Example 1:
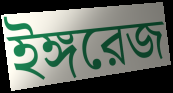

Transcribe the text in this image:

ইঙ্গরেজ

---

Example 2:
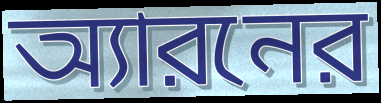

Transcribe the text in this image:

অ্যারনের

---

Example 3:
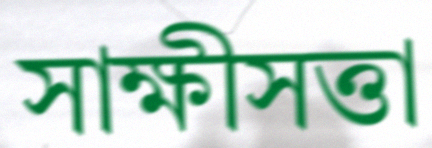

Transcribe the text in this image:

সাক্ষীসত্তা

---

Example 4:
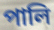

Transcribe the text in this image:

পালি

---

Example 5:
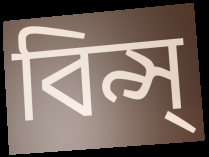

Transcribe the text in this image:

বিন্স্